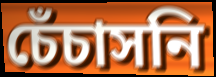
চেঁচাসনি